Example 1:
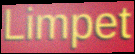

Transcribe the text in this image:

Limpet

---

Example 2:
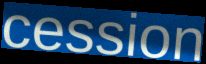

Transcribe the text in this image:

cession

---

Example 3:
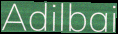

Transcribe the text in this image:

Adilbai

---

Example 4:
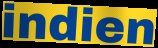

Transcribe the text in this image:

indien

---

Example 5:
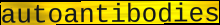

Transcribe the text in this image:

autoantibodies